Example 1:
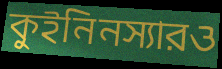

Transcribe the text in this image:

কুইনিনস্যারও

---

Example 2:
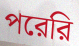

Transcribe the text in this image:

পরেরি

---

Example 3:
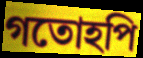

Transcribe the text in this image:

গতোহপি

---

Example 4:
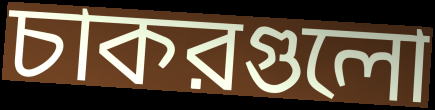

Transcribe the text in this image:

চাকরগুলো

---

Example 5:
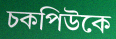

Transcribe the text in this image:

চকপিউকে